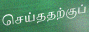
செய்ததற்குப்